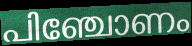
പിഞ്ചോണം